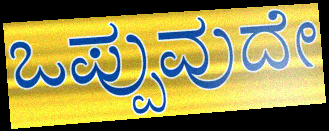
ಒಪ್ಪುವುದೇ